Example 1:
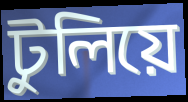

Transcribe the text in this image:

টুলিয়ে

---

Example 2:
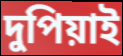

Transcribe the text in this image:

দুপিয়াই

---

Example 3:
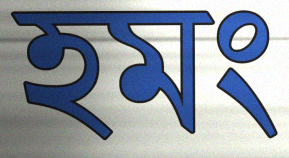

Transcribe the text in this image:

হমং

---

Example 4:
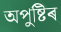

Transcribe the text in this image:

অপুষ্টিৰ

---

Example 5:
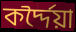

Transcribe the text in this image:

কৰ্দ্দৈয়া